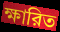
ক্ষারিত